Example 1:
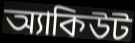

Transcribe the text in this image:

অ্যাকিউট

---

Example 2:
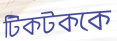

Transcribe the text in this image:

টিকটককে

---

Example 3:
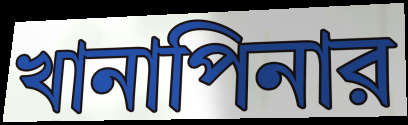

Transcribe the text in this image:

খানাপিনার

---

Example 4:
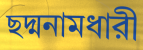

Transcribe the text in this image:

ছদ্মনামধারী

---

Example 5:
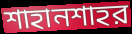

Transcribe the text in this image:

শাহানশাহর